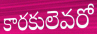
కారకులెవరో